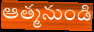
ఆత్మనుండి